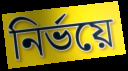
নিৰ্ভয়ে